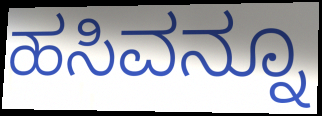
ಹಸಿವನ್ನೂ